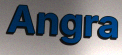
Angra